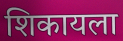
शिकायला